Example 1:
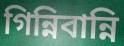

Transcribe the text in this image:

গিন্নিবান্নি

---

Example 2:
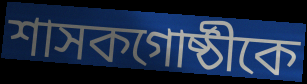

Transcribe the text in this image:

শাসকগোষ্ঠীকে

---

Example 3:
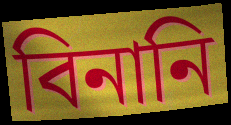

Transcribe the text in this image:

বিনানি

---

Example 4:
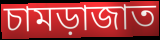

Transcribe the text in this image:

চামড়াজাত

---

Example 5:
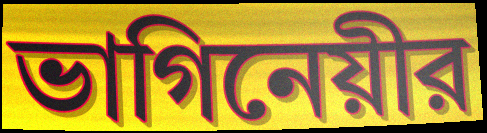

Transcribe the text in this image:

ভাগিনেয়ীর